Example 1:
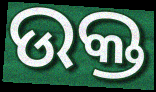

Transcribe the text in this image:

ଉକ୍ତ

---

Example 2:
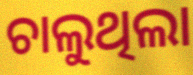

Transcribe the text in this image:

ଚାଲୁଥିଲା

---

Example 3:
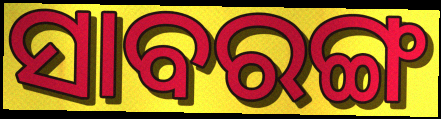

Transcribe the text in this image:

ସାବରଙ୍ଗ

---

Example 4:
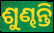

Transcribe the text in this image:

ଶୁଣ୍ଢନ୍ତି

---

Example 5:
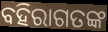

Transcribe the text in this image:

ବହିରାଗତଙ୍କ